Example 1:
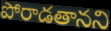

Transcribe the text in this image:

పోరాడతానని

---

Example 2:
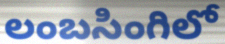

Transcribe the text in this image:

లంబసింగిలో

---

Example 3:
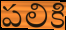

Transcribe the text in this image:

పలికి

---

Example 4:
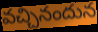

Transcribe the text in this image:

వచ్చినందున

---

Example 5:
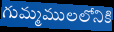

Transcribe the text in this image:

గుమ్మములలోనికి